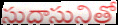
సుదాసునితో